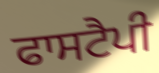
ਫਾਸਟੈਪੀ